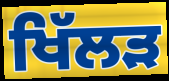
ਖਿੱਲੜ